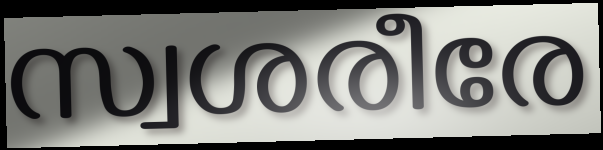
സ്വശരീരേ